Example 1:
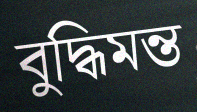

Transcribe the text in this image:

বুদ্ধিমন্ত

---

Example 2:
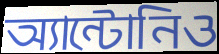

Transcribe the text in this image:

অ্যান্টোনিও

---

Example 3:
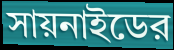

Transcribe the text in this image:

সায়নাইডের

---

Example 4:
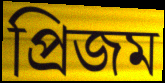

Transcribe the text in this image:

প্রিজম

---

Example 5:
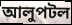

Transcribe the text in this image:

আলুপটল